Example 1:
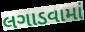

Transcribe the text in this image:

લગાડવામાં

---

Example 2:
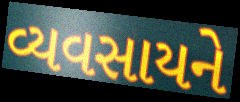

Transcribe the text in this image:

વ્યવસાયને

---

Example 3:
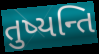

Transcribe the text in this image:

તુષ્યન્તિ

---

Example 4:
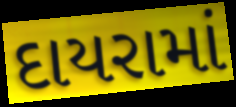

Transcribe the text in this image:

દાયરામાં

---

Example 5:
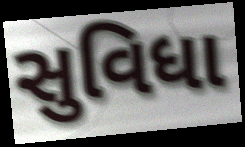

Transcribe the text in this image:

સુવિધા